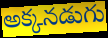
అక్కనడుగు